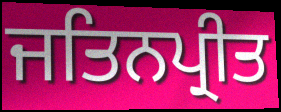
ਜਤਿਨਪ੍ਰੀਤ